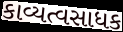
કાવ્યત્વસાધક